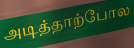
அடித்தாற்போல